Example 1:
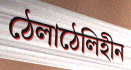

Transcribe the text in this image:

ঠেলাঠেলিহীন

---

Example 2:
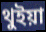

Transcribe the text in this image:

থুইয়া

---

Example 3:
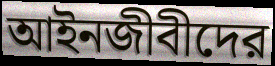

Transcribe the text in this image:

আইনজীবীদের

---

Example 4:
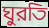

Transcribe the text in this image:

ঘুরতি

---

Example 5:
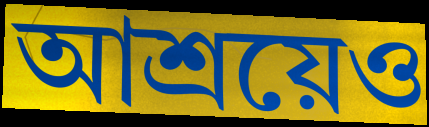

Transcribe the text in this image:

আশ্রয়েও